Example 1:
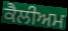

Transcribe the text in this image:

ਕੈਲੀਅਮ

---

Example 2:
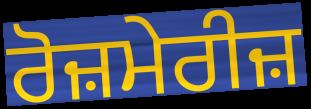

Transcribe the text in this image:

ਰੋਜ਼ਮੇਰੀਜ਼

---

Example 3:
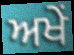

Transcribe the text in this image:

ਅਖੇਂ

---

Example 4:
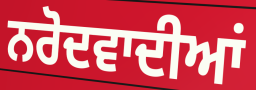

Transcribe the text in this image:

ਨਰੋਦਵਾਦੀਆਂ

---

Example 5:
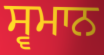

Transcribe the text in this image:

ਸ੍ਵਮਾਨ